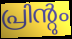
പ്രിന്റും